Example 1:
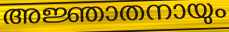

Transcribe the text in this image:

അജ്ഞാതനായും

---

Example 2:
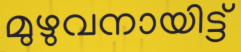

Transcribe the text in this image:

മുഴുവനായിട്ട്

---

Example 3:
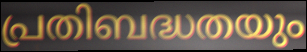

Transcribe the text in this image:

പ്രതിബദ്ധതയും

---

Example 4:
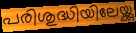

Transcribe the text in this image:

പരിശുദ്ധിയിലേയ്ക്കു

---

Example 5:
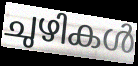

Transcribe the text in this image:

ചുഴികൾ